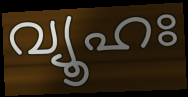
വ്യൂഹഃ